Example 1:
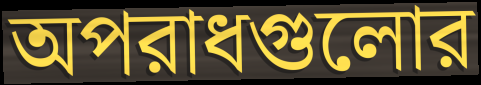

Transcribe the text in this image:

অপরাধগুলোর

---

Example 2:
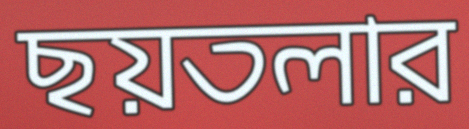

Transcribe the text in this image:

ছয়তলার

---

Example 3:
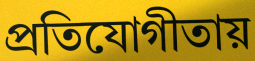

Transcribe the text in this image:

প্রতিযোগীতায়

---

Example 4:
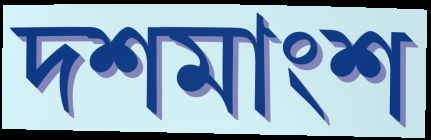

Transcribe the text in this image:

দশমাংশ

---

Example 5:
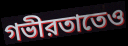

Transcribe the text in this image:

গভীরতাতেও